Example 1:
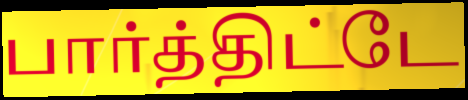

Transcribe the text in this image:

பார்த்திட்டே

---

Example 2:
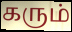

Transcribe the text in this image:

கரும்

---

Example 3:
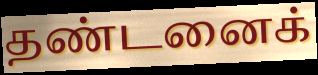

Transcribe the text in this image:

தண்டனைக்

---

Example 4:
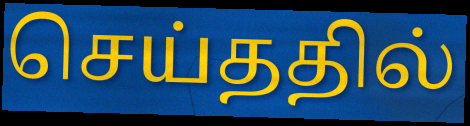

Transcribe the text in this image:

செய்ததில்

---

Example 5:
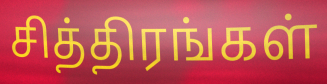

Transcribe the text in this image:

சித்திரங்கள்